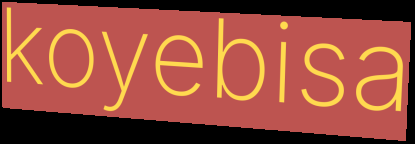
koyebisa